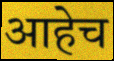
आहेच